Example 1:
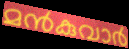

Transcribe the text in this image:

മൻകുവാർ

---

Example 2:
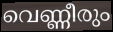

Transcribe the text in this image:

വെണ്ണീരും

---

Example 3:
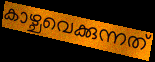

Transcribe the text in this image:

കാഴ്ചവെക്കുന്നത്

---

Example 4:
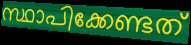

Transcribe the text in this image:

സ്ഥാപിക്കേണ്ടത്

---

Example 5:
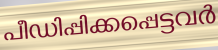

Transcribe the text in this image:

പീഡിപ്പിക്കപ്പെട്ടവർ